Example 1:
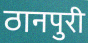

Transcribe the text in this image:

ठानपुरी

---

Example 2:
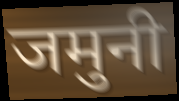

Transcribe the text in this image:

जमुनी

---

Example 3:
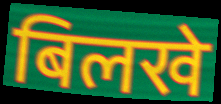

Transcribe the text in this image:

बिलखे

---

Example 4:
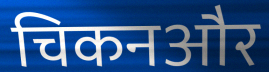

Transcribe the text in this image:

चिकनऔर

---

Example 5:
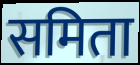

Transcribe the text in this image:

समिता